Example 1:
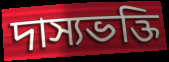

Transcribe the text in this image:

দাস্যভক্তি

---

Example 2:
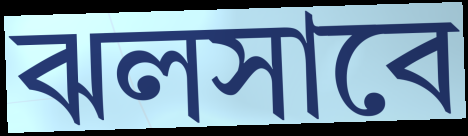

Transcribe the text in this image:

ঝলসাবে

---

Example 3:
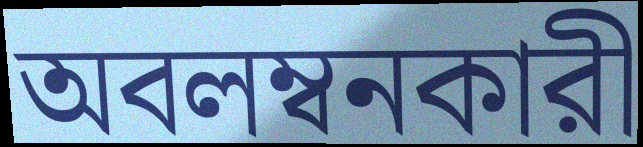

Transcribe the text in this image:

অবলম্বনকারী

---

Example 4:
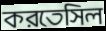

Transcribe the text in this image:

করতেসিল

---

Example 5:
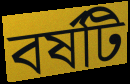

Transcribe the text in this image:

বর্ষটি